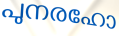
പുനരഹോ